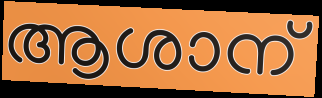
ആശാന്